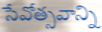
సేవోత్సవాన్ని